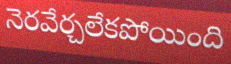
నెరవేర్చలేకపోయింది